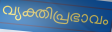
വ്യക്തിപ്രഭാവം